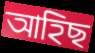
আহিছ